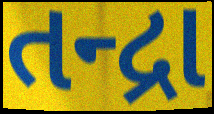
તન્દ્રા